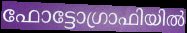
ഫോട്ടോഗ്രാഫിയിൽ